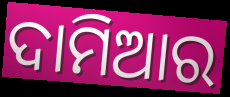
ଦାମିଆର